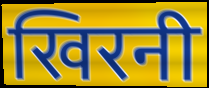
खिरनी